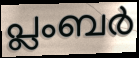
പ്ലംബർ